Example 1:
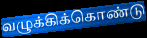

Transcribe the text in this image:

வழுக்கிக்கொண்டு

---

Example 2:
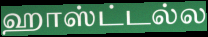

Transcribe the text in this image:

ஹாஸ்ட்டல்ல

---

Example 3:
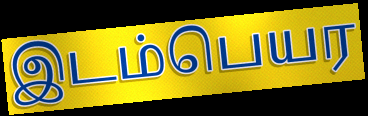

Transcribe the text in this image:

இடம்பெயர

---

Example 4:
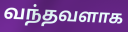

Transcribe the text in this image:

வந்தவளாக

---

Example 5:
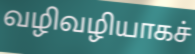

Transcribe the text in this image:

வழிவழியாகச்